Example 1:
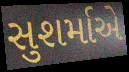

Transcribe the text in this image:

સુશર્માએ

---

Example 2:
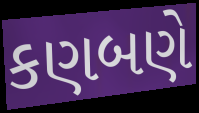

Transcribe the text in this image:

કણબણે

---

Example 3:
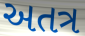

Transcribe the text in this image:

અતત્ર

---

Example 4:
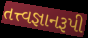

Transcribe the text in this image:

તત્ત્વજ્ઞાનરૂપી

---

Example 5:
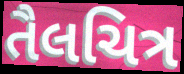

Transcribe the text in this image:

તૈલચિત્ર